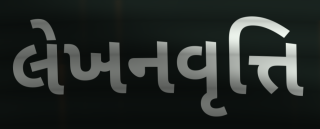
લેખનવૃત્તિ